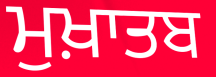
ਮੁਖ਼ਾਤਬ